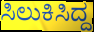
ಸಿಲುಕಿಸಿದ್ದ